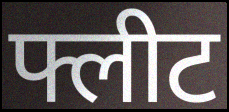
फ्लीट